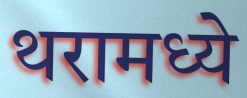
थरामध्ये